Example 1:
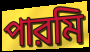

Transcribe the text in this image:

পারমি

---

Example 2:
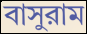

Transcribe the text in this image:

বাসুরাম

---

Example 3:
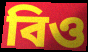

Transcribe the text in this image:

বিও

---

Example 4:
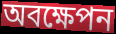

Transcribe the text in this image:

অবক্ষেপন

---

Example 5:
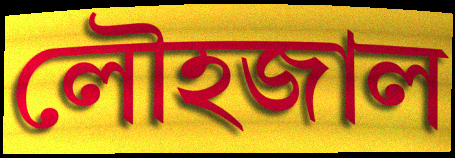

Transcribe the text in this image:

লৌহজাল